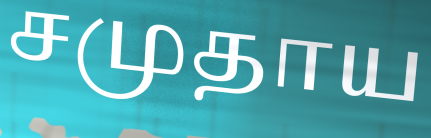
சமுதாய